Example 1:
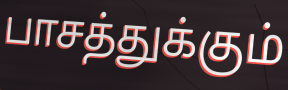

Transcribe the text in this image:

பாசத்துக்கும்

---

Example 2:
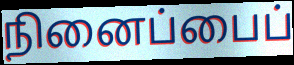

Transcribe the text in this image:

நினைப்பைப்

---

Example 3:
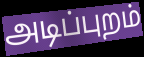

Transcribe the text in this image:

அடிப்புறம்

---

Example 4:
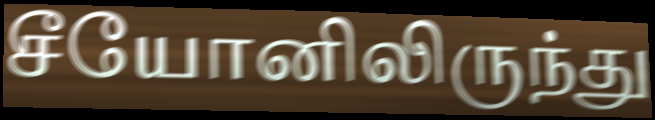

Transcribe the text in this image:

சீயோனிலிருந்து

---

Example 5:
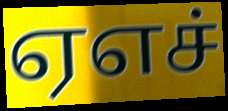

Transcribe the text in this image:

ஏஎச்